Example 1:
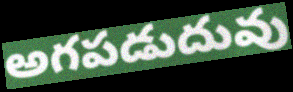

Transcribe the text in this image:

అగపడుదువు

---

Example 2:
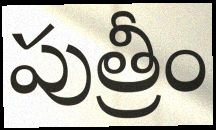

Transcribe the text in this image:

పుత్రీం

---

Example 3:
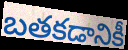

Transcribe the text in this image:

బతకడానికీ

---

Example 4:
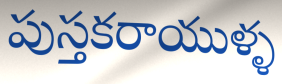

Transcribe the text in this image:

పుస్తకరాయుళ్ళ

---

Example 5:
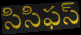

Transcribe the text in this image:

సిసిఫస్